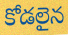
కోడలైన